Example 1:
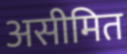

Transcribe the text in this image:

असीमित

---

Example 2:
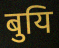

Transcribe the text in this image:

बुयि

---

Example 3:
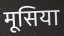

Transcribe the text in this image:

मूसिया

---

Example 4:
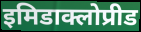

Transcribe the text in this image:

इमिडाक्लोप्रीड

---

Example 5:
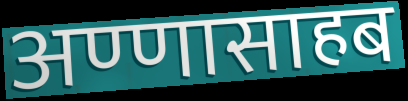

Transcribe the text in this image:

अण्णासाहब